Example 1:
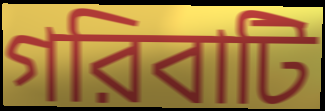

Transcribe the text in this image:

গরিবাটি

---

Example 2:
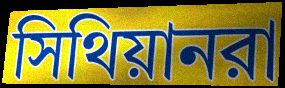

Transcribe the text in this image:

সিথিয়ানরা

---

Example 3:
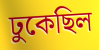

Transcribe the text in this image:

ঢুকেছিল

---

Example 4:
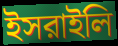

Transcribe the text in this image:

ইসরাইলি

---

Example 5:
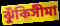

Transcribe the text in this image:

ঝুঁকিসীমা